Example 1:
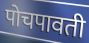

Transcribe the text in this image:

पोचपावती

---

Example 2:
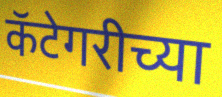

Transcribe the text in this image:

कॅटेगरीच्या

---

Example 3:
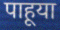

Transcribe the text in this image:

पाहूया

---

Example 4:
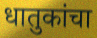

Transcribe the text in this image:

धातुकांचा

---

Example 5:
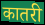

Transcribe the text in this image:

कातरी